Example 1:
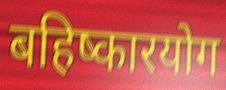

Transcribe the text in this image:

बहिष्कारयोग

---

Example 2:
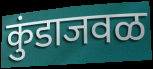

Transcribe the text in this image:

कुंडाजवळ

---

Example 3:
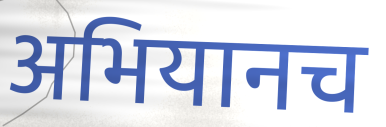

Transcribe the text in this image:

अभियानच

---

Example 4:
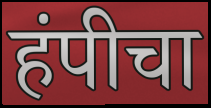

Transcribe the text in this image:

हंपीचा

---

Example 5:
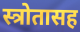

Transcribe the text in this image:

स्त्रोतासह